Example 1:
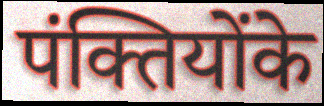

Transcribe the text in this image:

पंक्तियोंके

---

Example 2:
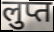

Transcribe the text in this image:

लुप्त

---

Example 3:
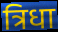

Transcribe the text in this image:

त्रिधा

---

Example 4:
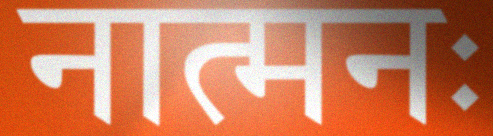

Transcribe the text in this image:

नात्मनः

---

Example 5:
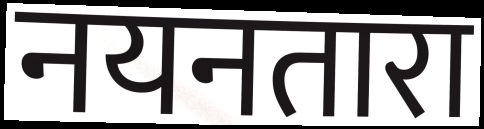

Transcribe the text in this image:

नयनतारा